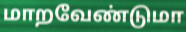
மாறவேண்டுமா